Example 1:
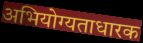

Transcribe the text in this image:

अभियोग्यताधारक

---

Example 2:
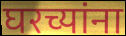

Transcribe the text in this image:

घरच्‍यांना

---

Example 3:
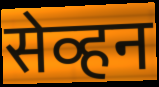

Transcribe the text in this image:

सेव्हन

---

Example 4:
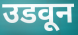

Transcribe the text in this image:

उडवून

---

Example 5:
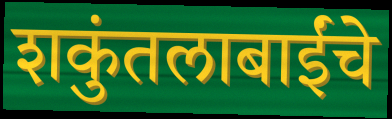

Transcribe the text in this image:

शकुंतलाबाईंचे